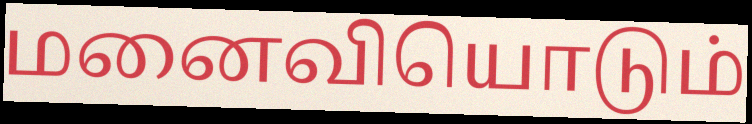
மனைவியொடும்